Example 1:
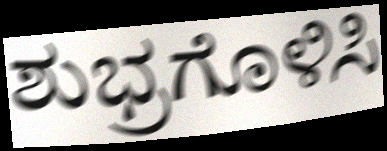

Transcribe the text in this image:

ಶುಭ್ರಗೊಳಿಸಿ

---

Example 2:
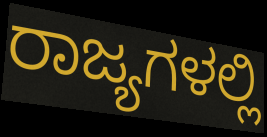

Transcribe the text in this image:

ರಾಜ್ಯಗಳಲ್ಲಿ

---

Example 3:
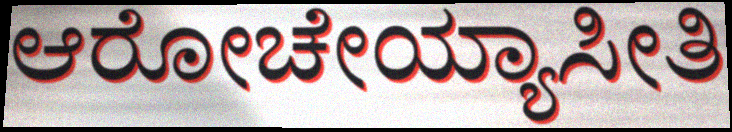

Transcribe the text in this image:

ಆರೋಚೇಯ್ಯಾಸೀತಿ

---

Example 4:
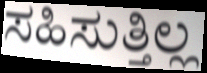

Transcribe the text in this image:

ಸಹಿಸುತ್ತಿಲ್ಲ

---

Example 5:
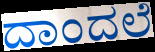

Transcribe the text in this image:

ದಾಂದಲೆ